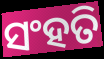
ସଂହତି